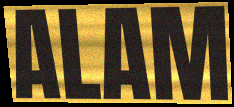
ALAM